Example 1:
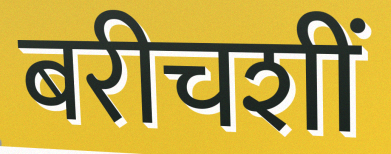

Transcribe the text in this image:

बरीचशीं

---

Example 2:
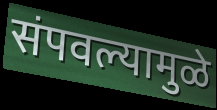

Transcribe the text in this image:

संपवल्यामुळे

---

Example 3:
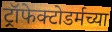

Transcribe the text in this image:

ट्रॉफेक्टोडर्मच्या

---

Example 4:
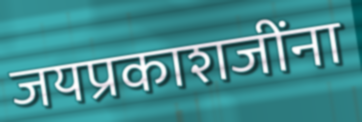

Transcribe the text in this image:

जयप्रकाशजींना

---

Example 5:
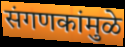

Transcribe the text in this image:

संगणकांमुळे